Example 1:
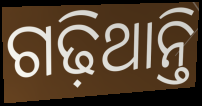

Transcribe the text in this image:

ଗଢ଼ିଥାନ୍ତି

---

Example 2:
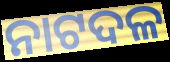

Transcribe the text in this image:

ନାଟଦଳ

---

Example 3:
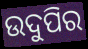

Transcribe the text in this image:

ଉଦୁପିର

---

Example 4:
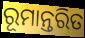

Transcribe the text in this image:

ରୂମାନ୍ତରିତ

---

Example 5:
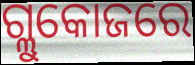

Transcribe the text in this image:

ଗ୍ଲୁକୋଜରେ